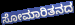
ಸೋಮಾರಿತನದ